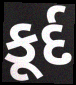
કૂર્દ